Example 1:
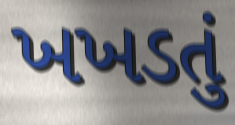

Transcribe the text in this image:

ખખડતું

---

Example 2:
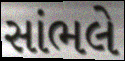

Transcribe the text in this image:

સાંભલે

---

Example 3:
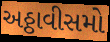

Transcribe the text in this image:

અઠ્ઠાવીસમો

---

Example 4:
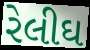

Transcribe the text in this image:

રેલીઘ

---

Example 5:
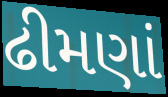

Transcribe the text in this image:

ઢીમણાં